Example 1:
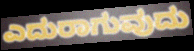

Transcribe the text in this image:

ಎದುರಾಗುವುದು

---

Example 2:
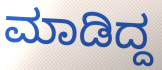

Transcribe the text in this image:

ಮಾಡಿದ್ದ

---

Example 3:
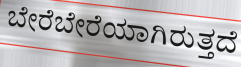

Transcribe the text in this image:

ಬೇರೆಬೇರೆಯಾಗಿರುತ್ತದೆ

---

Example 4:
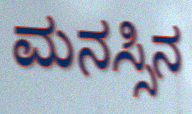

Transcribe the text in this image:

ಮನಸ್ಸಿನ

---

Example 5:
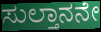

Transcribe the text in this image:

ಸುಲ್ತಾನನೇ